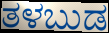
ತಳಬುಡ